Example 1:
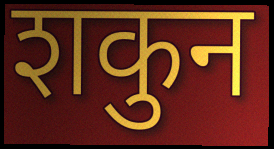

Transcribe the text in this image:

शकुन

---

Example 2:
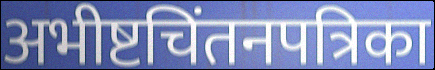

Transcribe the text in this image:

अभीष्टचिंतनपत्रिका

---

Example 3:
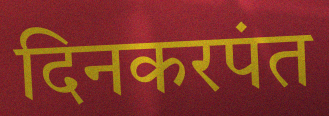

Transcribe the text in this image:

दिनकरपंत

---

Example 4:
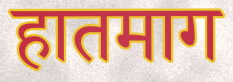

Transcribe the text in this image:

हातमाग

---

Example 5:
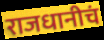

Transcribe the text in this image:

राजधानीचं